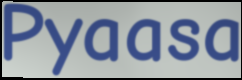
Pyaasa